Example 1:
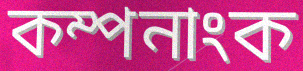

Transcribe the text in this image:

কম্পনাংক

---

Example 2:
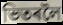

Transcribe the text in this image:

ভিতৰলৈ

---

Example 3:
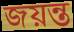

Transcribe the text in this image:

জয়ন্ত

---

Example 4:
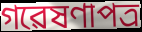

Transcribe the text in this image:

গৱেষণাপত্ৰ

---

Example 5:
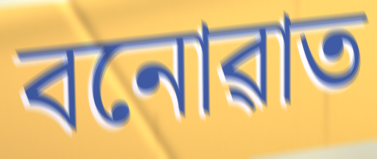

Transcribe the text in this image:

বনোৱাত